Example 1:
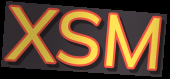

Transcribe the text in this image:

XSM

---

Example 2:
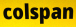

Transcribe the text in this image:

colspan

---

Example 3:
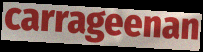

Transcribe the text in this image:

carrageenan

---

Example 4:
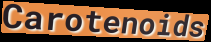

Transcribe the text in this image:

Carotenoids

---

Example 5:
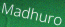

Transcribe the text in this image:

Madhuro